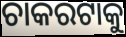
ଚାକରଟାକୁ